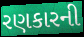
રણકારની